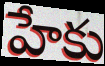
హేకు